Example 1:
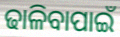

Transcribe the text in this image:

ଢାଳିବାପାଇଁ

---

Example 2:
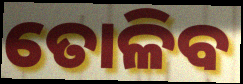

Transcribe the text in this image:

ତୋଳିବ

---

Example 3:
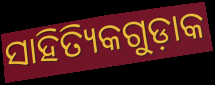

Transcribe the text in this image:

ସାହିତ୍ୟିକଗୁଡ଼ାକ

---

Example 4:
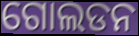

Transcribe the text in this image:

ଗୋଲଡନ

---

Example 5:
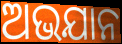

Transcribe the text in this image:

ଅଭଯାନ